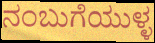
ನಂಬುಗೆಯುಳ್ಳ